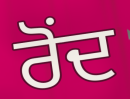
ਰੋਂਦ